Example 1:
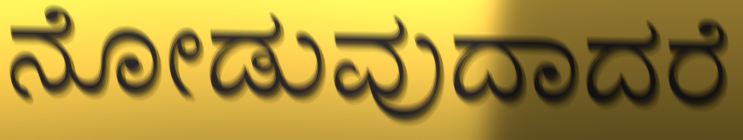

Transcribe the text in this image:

ನೋಡುವುದಾದರೆ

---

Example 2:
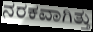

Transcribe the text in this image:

ನರಕವಾಗಿತ್ತು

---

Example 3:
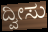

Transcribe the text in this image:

ದ್ವೀಸು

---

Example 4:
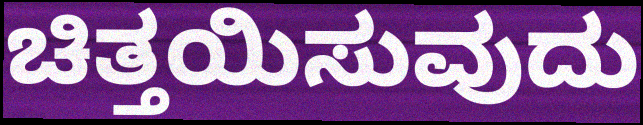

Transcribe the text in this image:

ಚಿತ್ತಯಿಸುವುದು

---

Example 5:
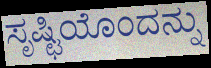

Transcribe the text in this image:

ಸೃಷ್ಟಿಯೊಂದನ್ನು